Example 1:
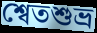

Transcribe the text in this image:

শ্বেতশুভ্র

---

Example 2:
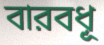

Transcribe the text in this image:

বারবধূ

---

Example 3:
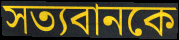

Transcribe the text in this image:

সত্যবানকে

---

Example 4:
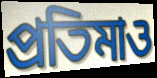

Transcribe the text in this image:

প্রতিমাও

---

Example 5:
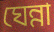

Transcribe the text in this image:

ঘেন্না